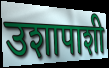
उशापाशी